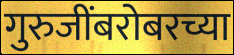
गुरुजींबरोबरच्या